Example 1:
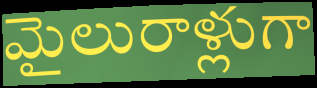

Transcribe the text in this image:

మైలురాళ్లుగా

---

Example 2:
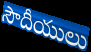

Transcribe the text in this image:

సౌదీయులు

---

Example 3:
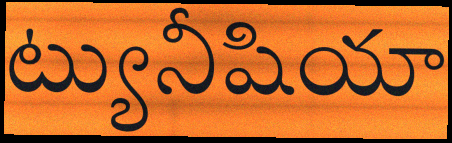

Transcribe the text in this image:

ట్యునీషియా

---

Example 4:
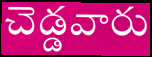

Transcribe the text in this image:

చెడ్డవారు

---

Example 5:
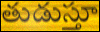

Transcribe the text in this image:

తుడుస్తూ